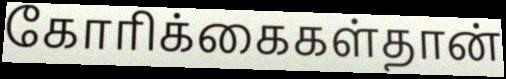
கோரிக்கைகள்தான்